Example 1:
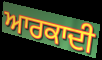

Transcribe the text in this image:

ਆਰਕਾਦੀ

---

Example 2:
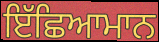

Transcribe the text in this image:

ਇੱਛਿਆਮਾਨ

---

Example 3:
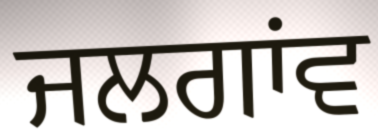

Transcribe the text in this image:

ਜਲਗਾਂਵ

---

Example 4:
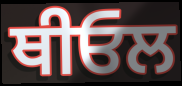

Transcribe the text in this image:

ਥੀਓਲ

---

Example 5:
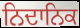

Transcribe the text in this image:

ਨਿਦਾਨਿਕ